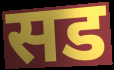
सड